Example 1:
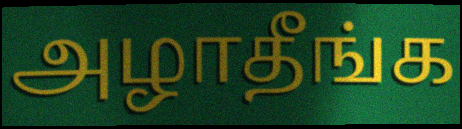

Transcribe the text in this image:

அழாதீங்க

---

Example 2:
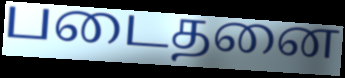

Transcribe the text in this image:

படைதனை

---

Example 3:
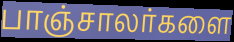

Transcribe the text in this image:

பாஞ்சாலர்களை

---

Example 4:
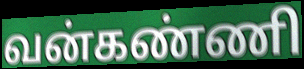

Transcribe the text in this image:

வன்கண்ணி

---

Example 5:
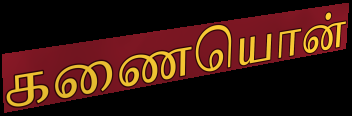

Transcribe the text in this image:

கணையொன்